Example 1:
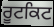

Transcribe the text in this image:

ਰੂਟਕਿਟ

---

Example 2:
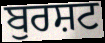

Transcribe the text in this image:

ਬੁਰਸ਼ਟ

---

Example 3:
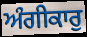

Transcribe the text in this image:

ਅੰਗੀਕਾਰੁ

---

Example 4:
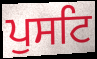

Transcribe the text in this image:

ਪੁਸਟਿ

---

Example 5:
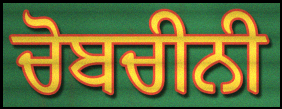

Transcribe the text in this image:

ਚੋਬਚੀਨੀ